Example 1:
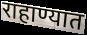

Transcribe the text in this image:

राहाण्यात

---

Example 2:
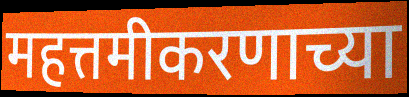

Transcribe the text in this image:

महत्तमीकरणाच्या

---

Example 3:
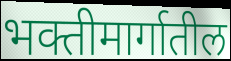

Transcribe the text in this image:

भक्तीमार्गातील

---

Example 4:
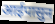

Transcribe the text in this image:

आईपासुन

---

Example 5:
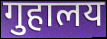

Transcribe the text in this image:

गुहालय